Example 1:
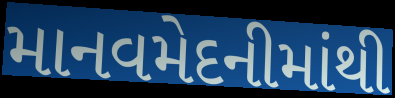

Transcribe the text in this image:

માનવમેદનીમાંથી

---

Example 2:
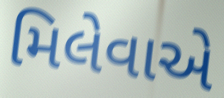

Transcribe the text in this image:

મિલેવાએ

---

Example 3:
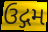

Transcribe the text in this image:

ઉદ્ગમ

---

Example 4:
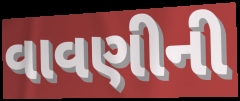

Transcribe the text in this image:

વાવણીની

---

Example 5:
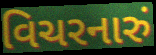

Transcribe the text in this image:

વિચરનારું